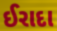
ઈરાદા